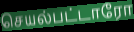
செயல்பட்டாரோ